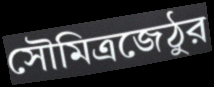
সৌমিত্রজেঠুর